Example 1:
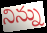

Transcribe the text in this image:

నిన్ను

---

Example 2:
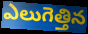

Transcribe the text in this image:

ఎలుగెత్తిన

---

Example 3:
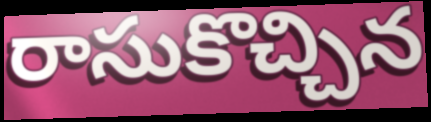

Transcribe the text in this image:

రాసుకొచ్చిన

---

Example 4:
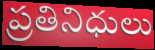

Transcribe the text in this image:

ప్రతినిధులు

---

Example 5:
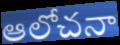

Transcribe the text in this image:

ఆలోచనా